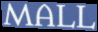
MALL